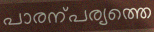
പാരന്പര്യത്തെ